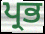
ਪ੍ਰਭ